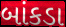
બાંકડા